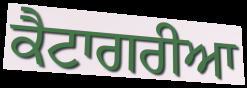
ਕੈਟਾਗਰੀਆ